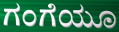
ಗಂಗೆಯೂ